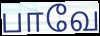
பாவே